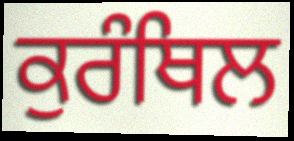
ਕੁਰੰਥਿਲ